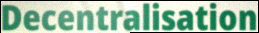
Decentralisation